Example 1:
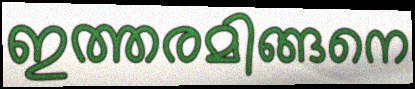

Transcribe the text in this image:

ഇത്തരമിങ്ങനെ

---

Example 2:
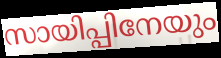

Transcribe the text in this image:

സായിപ്പിനേയും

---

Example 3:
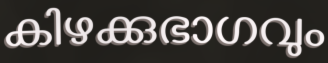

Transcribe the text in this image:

കിഴക്കുഭാഗവും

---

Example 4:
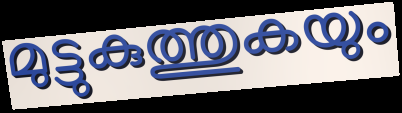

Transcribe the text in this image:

മുട്ടുകുത്തുകയും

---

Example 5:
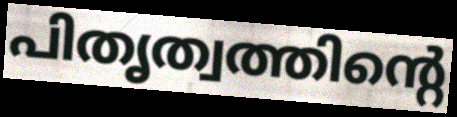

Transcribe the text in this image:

പിതൃത്വത്തിന്റെ